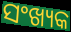
ସଂଖ୍ୟକ